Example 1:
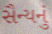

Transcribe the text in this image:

સૈન્યનું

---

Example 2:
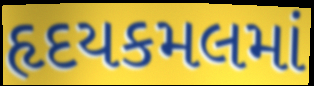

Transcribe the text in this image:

હૃદયકમલમાં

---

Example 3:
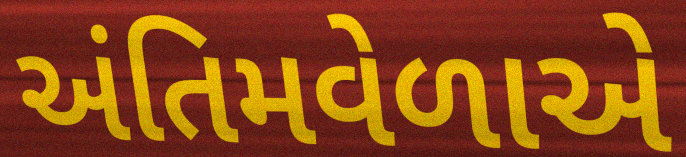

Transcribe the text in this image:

અંતિમવેળાએ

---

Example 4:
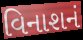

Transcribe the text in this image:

વિનાશનં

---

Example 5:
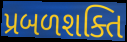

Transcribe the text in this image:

પ્રબળશક્તિ